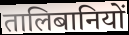
तालिबानियों